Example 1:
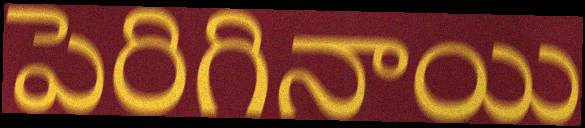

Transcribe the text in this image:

పెరిగినాయి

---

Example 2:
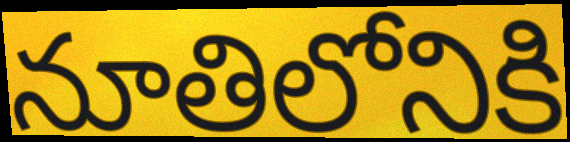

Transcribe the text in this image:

నూతిలోనికి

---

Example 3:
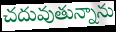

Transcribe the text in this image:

చదువుతున్నాను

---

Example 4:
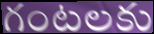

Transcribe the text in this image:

గంటలకు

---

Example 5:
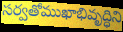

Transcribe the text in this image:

సర్వతోముఖాభివృద్ధిని